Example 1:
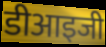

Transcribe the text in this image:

डीआइजी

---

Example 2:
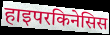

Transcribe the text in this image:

हाइपरकिनेसिस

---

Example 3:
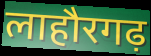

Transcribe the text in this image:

लाहौरगढ़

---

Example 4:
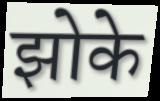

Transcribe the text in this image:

झोके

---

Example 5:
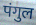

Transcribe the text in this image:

पंगुल